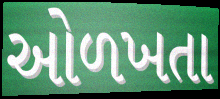
ઓળખતા